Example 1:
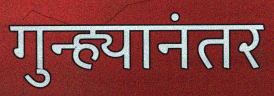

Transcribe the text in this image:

गुन्ह्यानंतर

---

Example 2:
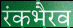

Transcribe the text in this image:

रंकभैरव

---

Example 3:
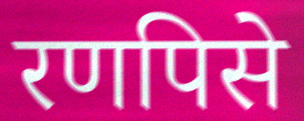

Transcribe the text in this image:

रणपिसे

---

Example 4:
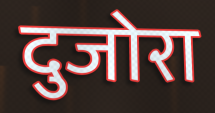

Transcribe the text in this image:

दुजोरा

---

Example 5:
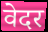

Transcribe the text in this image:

वेदर